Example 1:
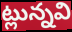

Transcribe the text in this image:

ట్లున్నవి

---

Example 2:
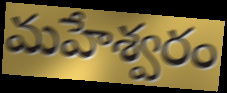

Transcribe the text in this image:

మహేశ్వరం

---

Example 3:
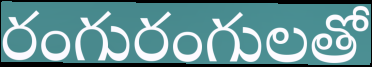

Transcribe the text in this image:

రంగురంగులతో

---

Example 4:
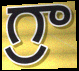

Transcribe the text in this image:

గ్రా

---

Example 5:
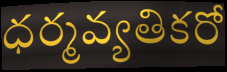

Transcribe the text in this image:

ధర్మవ్యతికరో